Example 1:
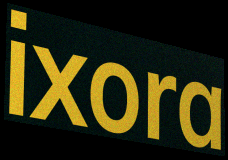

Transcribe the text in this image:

ixora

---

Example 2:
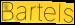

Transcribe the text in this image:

Bartels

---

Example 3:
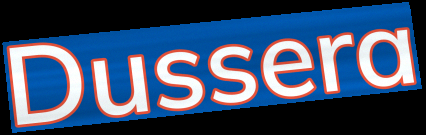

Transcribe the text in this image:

Dussera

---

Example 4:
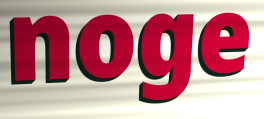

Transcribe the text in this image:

noge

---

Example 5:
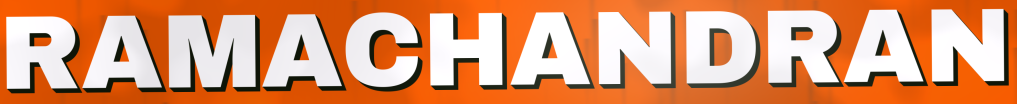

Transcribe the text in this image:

RAMACHANDRAN